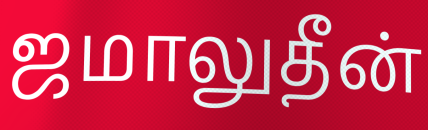
ஜமாலுதீன்